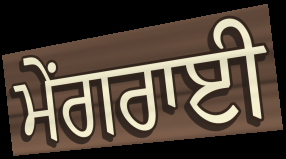
ਮੇਂਗਰਾਈ